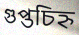
গুপ্তচিহ্ন